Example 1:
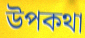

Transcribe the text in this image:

উপকথা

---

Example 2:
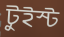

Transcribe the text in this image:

টুইস্ট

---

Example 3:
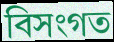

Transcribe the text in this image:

বিসংগত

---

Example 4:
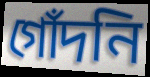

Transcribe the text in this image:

গোঁদনি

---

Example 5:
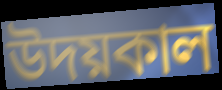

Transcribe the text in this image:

উদয়কাল